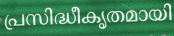
പ്രസിദ്ധീകൃതമായി